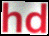
hd